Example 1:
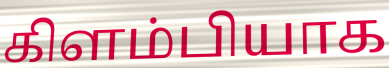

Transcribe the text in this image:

கிளம்பியாக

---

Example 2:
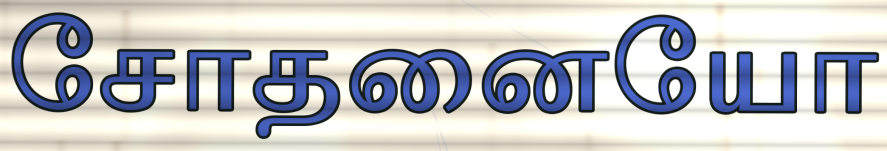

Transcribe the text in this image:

சோதனையோ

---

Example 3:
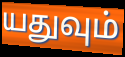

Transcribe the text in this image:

யதுவும்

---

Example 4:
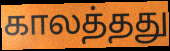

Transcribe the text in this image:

காலத்தது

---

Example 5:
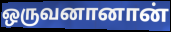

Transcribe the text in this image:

ஒருவனானான்